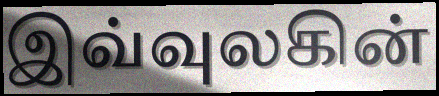
இவ்வுலகின்